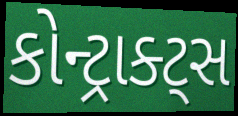
કોન્ટ્રાક્ટ્સ